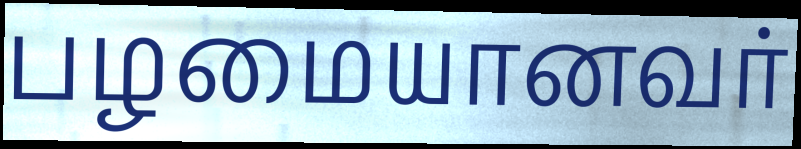
பழமையானவர்